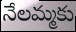
నేలమ్మకు